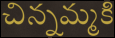
చిన్నమ్మకి